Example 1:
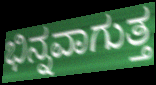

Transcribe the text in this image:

ಭಿನ್ನವಾಗುತ್ತ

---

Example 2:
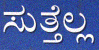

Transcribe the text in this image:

ಸುತ್ತೆಲ್ಲ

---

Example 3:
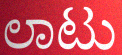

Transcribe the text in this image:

ಲಾಟು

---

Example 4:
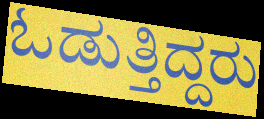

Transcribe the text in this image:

ಓಡುತ್ತಿದ್ದರು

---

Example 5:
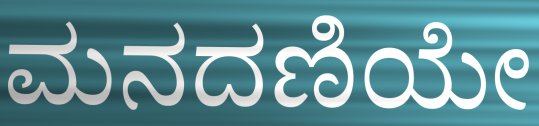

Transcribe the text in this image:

ಮನದಣಿಯೇ